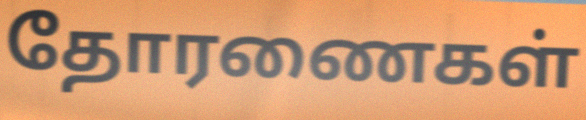
தோரணைகள்